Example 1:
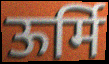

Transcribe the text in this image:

ऊर्मि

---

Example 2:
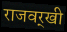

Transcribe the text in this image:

राजवर्खी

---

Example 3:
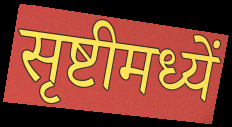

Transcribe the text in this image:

सृष्टीमध्यें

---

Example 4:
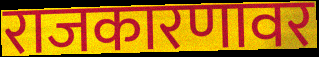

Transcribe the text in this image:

राजकारणावर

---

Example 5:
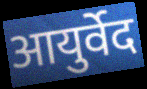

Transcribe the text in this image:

आयुर्वेद